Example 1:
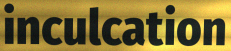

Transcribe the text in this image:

inculcation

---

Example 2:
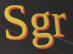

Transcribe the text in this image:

Sgr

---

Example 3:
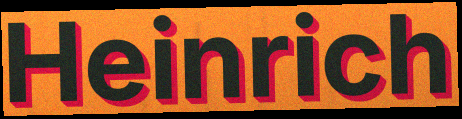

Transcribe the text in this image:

Heinrich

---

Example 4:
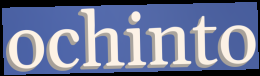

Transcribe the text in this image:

ochinto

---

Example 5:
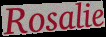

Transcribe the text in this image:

Rosalie